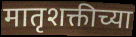
मातृशक्तीच्या